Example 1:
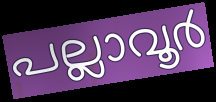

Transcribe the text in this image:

പല്ലാവൂർ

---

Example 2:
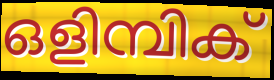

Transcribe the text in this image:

ഒളിമ്പിക്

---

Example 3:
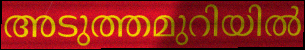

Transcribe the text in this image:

അടുത്തമുറിയിൽ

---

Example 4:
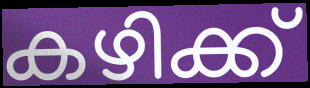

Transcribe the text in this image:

കഴിക്ക്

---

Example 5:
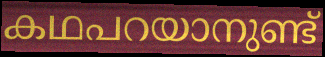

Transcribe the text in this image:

കഥപറയാനുണ്ട്